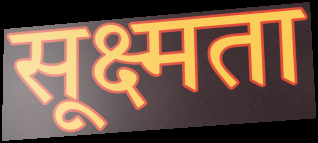
सूक्ष्मता